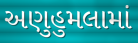
અણુહુમલામાં